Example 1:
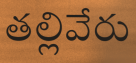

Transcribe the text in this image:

తల్లివేరు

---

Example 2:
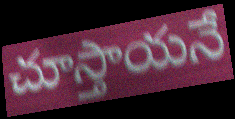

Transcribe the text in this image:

చూస్తాయనే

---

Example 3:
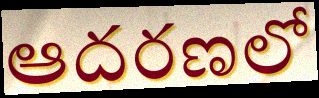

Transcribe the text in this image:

ఆదరణలో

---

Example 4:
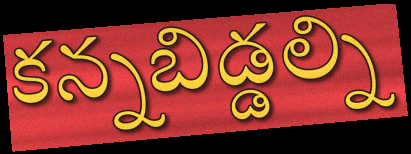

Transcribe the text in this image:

కన్నబిడ్డల్ని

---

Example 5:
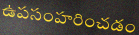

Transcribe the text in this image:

ఉపసంహరించడం